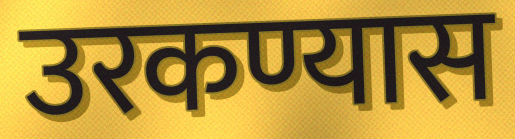
उरकण्यास